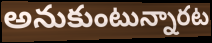
అనుకుంటున్నారట